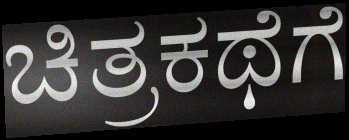
ಚಿತ್ರಕಥೆಗೆ